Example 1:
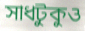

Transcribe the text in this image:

সাধটুকুও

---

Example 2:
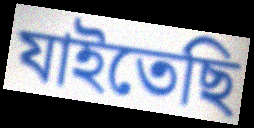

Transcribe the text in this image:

যাইতেছি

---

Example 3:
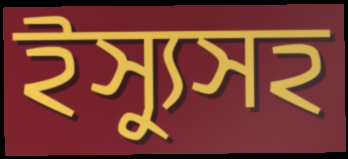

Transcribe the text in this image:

ইস্যুসহ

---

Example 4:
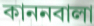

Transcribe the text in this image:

কাননবালা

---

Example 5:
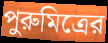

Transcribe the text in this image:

পুরুমিত্রের